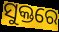
ସୁକ୍ତରେ